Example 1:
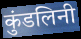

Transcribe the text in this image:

कुंडलिनी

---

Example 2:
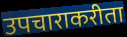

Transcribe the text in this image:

उपचाराकरीता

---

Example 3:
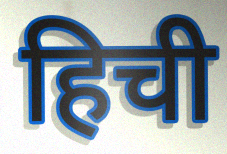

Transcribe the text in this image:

हिची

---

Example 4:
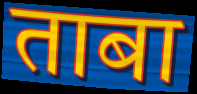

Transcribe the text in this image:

ताबा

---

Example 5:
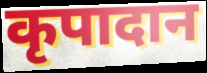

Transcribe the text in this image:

कृपादान